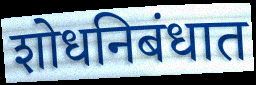
शोधनिबंधात